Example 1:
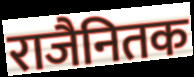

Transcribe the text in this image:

राजैनितक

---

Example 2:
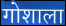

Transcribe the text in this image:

गोशाला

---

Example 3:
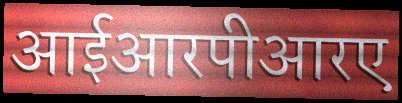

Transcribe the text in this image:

आईआरपीआरए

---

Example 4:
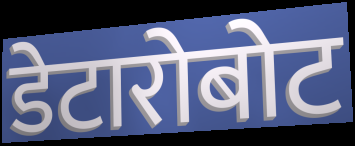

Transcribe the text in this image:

डेटारोबोट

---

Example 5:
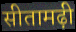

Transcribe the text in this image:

सीतामढ़ी